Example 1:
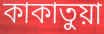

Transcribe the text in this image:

কাকাতুয়া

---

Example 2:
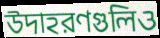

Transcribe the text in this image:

উদাহরণগুলিও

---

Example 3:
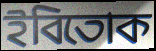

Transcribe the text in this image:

ইবিতোক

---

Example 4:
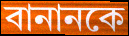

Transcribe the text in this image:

বানানকে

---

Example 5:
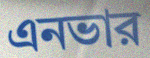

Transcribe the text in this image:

এনভার